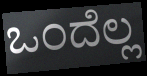
ಒಂದೆಲ್ಲ